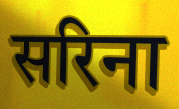
सरिना